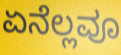
ಏನೆಲ್ಲವೂ